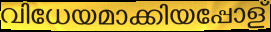
വിധേയമാക്കിയപ്പോള്